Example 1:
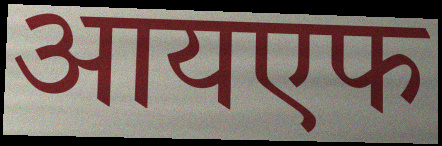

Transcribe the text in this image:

आयएफ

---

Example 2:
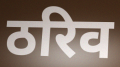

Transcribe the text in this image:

ठरिव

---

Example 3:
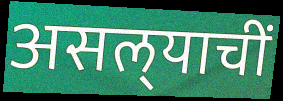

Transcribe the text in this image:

असल्याचीं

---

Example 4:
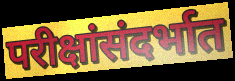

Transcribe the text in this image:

परीक्षांसंदर्भात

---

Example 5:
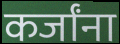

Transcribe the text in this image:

कर्जांना